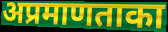
अप्रमाणताका